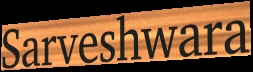
Sarveshwara